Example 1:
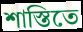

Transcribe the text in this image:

শাস্তিতে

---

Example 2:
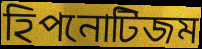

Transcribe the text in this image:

হিপনোটিজম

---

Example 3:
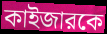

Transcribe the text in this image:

কাইজারকে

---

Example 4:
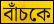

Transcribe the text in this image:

বাঁচকে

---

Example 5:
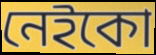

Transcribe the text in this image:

নেইকো